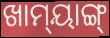
ଖାମ୍‌ୟାଙ୍ଗ୍